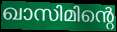
ഖാസിമിന്റെ